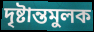
দৃষ্টান্তমুলক